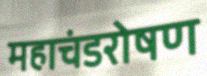
महाचंडरोषण